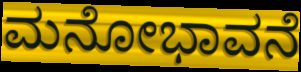
ಮನೋಭಾವನೆ